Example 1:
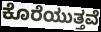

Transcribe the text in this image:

ಕೊರೆಯುತ್ತವೆ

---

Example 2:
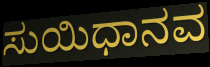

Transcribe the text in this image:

ಸುಯಿಧಾನವ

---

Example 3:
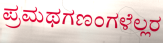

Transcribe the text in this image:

ಪ್ರಮಥಗಣಂಗಳೆಲ್ಲರ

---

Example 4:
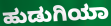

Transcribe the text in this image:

ಹುಡುಗಿಯಾ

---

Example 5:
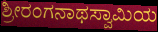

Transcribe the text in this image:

ಶ್ರೀರಂಗನಾಥಸ್ವಾಮಿಯ